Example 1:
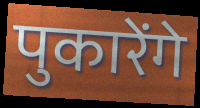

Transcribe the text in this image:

पुकारेंगे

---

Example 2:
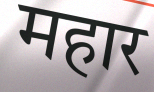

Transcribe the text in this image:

महार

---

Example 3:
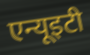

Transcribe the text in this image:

एन्यूइटी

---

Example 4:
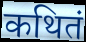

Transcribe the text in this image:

कथितं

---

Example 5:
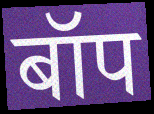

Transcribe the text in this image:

बॉप